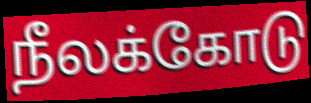
நீலக்கோடு